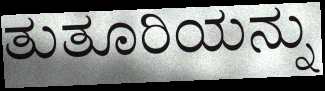
ತುತೂರಿಯನ್ನು